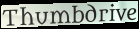
Thumbdrive